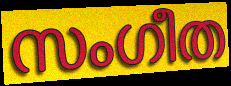
സംഗീത